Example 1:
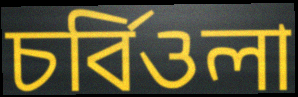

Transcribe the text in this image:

চর্বিওলা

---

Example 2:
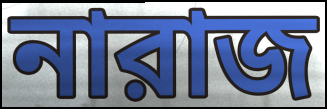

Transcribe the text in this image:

নারাজ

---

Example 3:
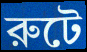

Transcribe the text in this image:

রুটে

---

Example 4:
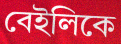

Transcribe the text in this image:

বেইলিকে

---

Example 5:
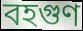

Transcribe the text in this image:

বহগুণ